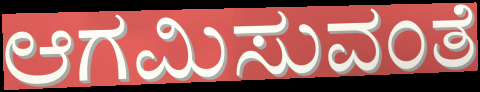
ಆಗಮಿಸುವಂತೆ